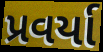
પ્રવર્યા